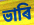
ভাৰি